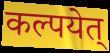
कल्पयेत्